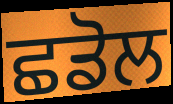
ਛਡੋਲ